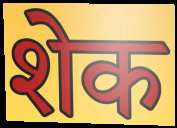
शेक